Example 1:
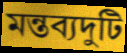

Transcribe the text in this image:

মন্তব্যদুটি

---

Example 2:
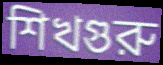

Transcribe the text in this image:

শিখগুরু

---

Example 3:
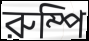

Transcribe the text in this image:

রুম্পি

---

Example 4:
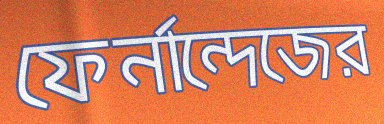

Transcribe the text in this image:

ফের্নান্দেজের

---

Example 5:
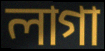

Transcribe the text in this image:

লাগা